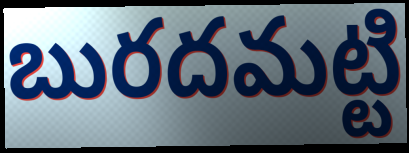
బురదమట్టి